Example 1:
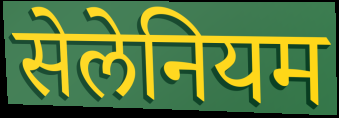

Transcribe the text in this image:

सेलेनियम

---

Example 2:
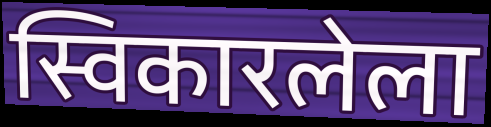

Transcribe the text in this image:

स्विकारलेला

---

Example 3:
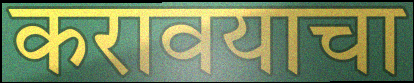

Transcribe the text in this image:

करावयाचा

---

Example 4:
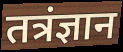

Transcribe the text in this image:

तत्रंज्ञान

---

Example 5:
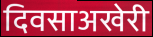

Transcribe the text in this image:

दिवसाअखेरी